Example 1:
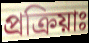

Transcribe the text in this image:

প্রক্রিয়াঃ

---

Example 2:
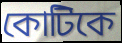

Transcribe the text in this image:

কোটিকে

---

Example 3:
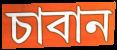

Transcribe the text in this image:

চাবান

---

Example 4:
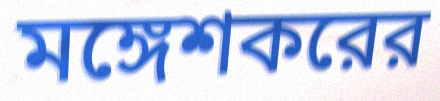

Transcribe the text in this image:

মঙ্গেশকরের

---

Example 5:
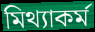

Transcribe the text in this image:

মিথ্যাকর্ম